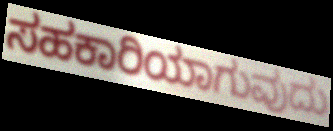
ಸಹಕಾರಿಯಾಗುವುದು